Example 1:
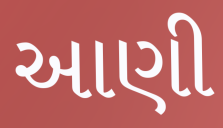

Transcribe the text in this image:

આણી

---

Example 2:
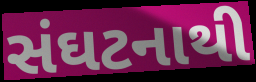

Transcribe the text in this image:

સંઘટનાથી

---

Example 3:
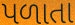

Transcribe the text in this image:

પળાતા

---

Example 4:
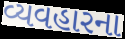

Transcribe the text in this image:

વ્યવહારના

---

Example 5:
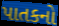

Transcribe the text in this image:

પાતકનો